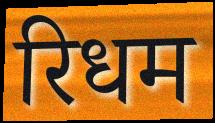
रिधम